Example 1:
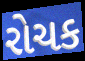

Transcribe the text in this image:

રોચક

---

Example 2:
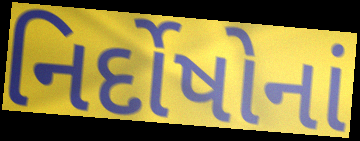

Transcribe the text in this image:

નિર્દોષોનાં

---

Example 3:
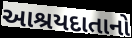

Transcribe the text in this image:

આશ્રયદાતાનો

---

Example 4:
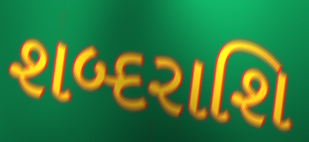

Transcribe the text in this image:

શબ્દરાશિ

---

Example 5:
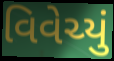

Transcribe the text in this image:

વિવેચ્યું